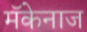
मॅकेनाज